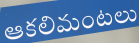
ఆకలిమంటలు